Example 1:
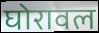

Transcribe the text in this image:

घोरावल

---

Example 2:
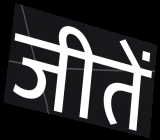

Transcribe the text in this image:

जीतें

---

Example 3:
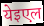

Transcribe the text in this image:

येइएल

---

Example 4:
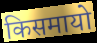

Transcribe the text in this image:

किसमायो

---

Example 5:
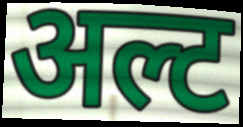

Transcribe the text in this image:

अल्ट